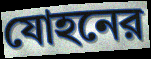
যোহনের